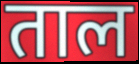
ताल